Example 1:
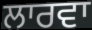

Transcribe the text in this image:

ਲਾਰਵਾ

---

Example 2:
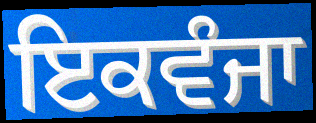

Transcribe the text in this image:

ਇਕਵੰਜਾ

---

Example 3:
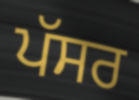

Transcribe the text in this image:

ਪੱਸਰ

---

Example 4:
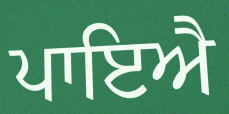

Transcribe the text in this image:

ਪਾਇਐ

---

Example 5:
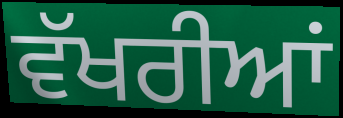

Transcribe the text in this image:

ਵੱਖਰੀਆਂ